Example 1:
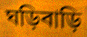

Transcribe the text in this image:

ঘড়িবাড়ি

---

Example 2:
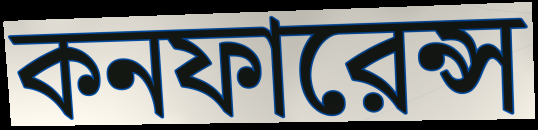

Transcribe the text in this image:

কনফারেন্স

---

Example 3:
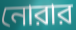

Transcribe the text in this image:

নোরার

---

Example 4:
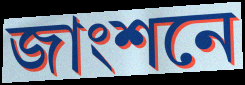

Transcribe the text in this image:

জাংশনে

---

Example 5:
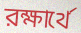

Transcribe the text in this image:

রক্ষার্থে